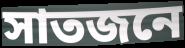
সাতজনে